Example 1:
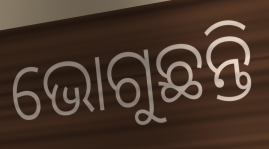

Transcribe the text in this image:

ଭୋଗୁଛନ୍ତି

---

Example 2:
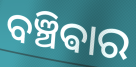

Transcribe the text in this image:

ବଞ୍ଚିଵାର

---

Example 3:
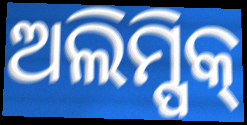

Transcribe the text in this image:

ଅଲିମ୍ପିକ୍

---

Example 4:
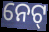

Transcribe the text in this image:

ନେଟ୍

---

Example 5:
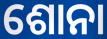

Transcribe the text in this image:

ଶୋନା